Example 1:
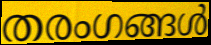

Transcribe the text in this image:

തരംഗങ്ങൾ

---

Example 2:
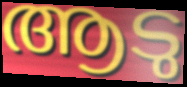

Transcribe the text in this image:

ആടു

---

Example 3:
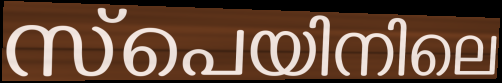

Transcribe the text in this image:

സ്‌പെയിനിലെ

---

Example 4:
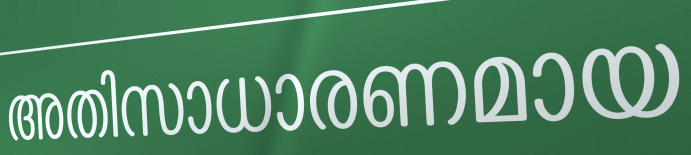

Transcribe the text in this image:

അതിസാധാരണമായ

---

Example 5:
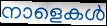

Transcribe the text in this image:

നാളെകൾ